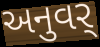
અનુવર્